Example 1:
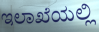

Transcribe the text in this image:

ಇಲಾಖೆಯಲ್ಲಿ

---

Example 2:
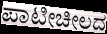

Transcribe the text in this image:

ಪಾಟೀಚೀಲದ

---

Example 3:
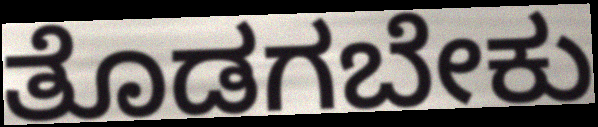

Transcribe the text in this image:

ತೊಡಗಬೇಕು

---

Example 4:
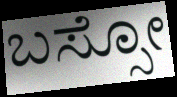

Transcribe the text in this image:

ಬಸ್ಸೋ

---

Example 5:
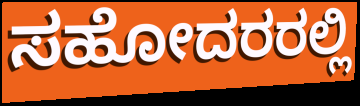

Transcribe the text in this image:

ಸಹೋದರರಲ್ಲಿ